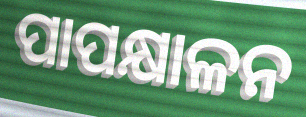
ପାପକ୍ଷାଳନ